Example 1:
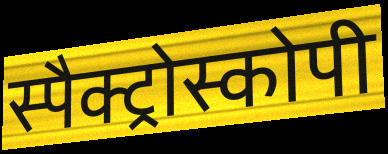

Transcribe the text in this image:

स्पैक्ट्रोस्कोपी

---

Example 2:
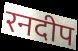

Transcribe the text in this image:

रनदीप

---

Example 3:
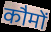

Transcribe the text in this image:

कौमों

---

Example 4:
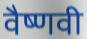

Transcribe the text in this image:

वैष्णवी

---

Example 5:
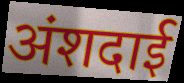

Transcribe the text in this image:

अंशदाई